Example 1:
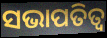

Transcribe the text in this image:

ସଭାପତିତ୍ବ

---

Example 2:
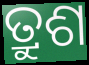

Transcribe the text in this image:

ତ୍ରୁଶ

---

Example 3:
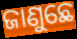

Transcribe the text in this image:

ଜାଣୁଛେ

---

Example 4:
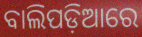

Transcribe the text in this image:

ବାଲିପଡ଼ିଆରେ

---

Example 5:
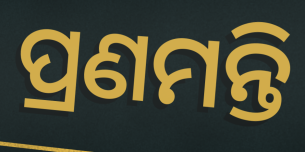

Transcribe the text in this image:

ପ୍ରଣମନ୍ତି